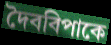
দৈববিপাকে